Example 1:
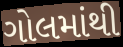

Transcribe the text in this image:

ગોલમાંથી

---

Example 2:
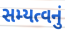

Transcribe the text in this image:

સમ્યત્વનું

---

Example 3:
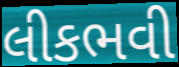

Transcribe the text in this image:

લીકભવી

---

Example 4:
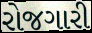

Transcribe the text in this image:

રોજગારી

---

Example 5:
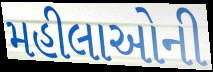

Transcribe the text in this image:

મહીલાઓની